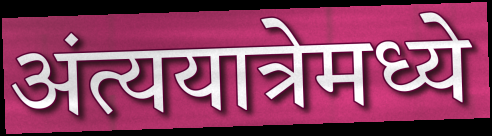
अंत्ययात्रेमध्ये